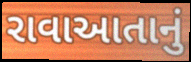
રાવાઆતાનું